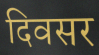
दिवसर